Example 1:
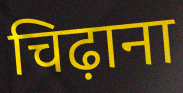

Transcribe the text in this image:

चिढ़ाना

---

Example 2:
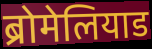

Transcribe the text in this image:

ब्रोमेलियाड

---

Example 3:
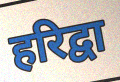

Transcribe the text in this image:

हरिद्वा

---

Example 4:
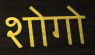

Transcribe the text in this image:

शोगो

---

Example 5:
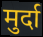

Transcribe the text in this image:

मुर्दा